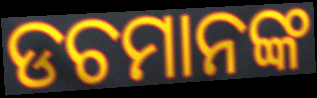
ଡଚମାନଙ୍କ